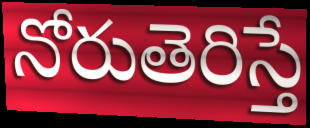
నోరుతెరిస్తే